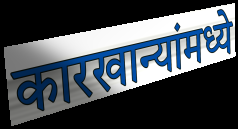
कारखान्यांमध्ये